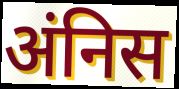
अंनिस